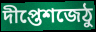
দীপ্তেশজেঠু